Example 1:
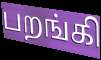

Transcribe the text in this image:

பறங்கி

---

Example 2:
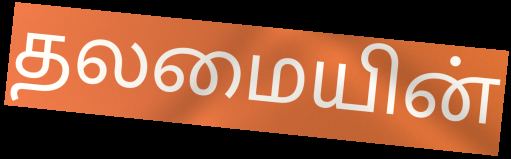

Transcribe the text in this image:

தலமையின்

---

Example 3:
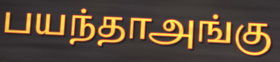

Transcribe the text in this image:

பயந்தாஅங்கு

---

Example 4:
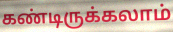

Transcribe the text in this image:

கண்டிருக்கலாம்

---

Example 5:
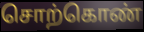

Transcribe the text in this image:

சொற்கொண்